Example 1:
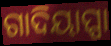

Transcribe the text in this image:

ଗାଦିୟାପ୍ପା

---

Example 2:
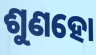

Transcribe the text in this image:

ଶୁଣହୋ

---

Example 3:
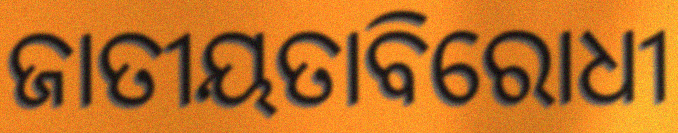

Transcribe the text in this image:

ଜାତୀୟତାବିରୋଧୀ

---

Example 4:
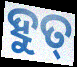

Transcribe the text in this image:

ହୁତ୍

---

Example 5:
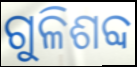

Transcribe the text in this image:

ଗୁଳିଶବ୍ଦ